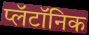
प्लॅटॉनिक